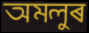
অমলুৰ